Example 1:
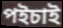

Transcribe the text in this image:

পইচাই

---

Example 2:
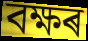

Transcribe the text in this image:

বক্ষৰ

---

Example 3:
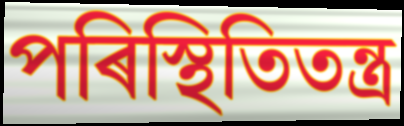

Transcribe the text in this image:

পৰিস্থিতিতন্ত্ৰ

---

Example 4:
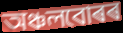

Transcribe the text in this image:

অঞ্চলবোৰৰ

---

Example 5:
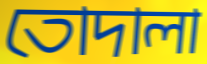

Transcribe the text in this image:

তোদালা